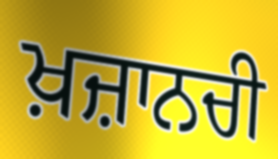
ਖ਼ਜ਼ਾਨਚੀ